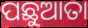
ପଛୁଆତା